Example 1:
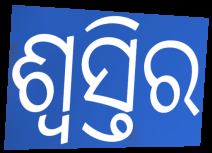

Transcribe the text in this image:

ଶ୍ୱସ୍ତିର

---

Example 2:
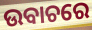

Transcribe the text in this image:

ଉବାଚରେ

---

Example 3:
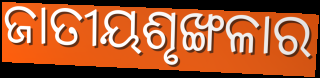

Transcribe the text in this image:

ଜାତୀୟଶୃଙ୍ଖଳାର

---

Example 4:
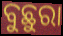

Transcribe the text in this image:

ବୁଛୁରା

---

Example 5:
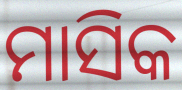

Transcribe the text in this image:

ମାସିକ